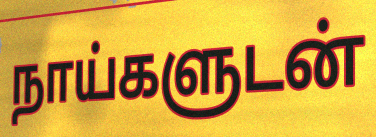
நாய்களுடன்